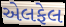
એલફેલ